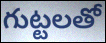
గుట్టలతో